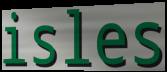
isles